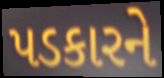
પડકારને